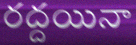
రద్దయినా